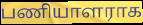
பணியாளராக